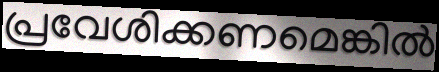
പ്രവേശിക്കണമെങ്കിൽ